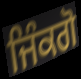
ਜਿੰਕਗੋ